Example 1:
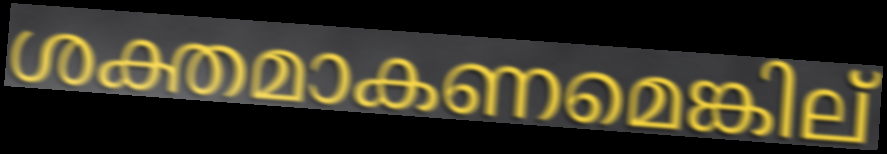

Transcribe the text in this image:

ശക്തമാകണമെങ്കില്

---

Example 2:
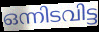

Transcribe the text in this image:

ഒന്നിടവിട്ട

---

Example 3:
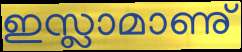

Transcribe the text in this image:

ഇസ്ലാമാണു്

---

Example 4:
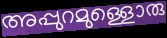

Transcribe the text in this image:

അപ്പുറമുള്ളൊരു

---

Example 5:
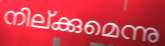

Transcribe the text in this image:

നില്ക്കുമെന്നു